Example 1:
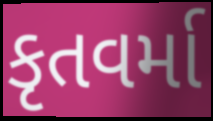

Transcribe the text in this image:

કૃતવર્મા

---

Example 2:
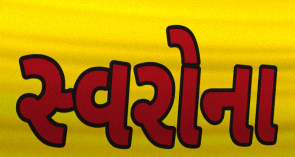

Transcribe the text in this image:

સ્વરોના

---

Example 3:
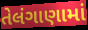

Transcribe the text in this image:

તેલંગાણામાં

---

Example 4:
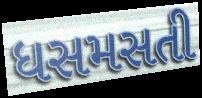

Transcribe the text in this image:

ધસમસતી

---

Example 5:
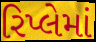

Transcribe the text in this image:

રિપ્લેમાં